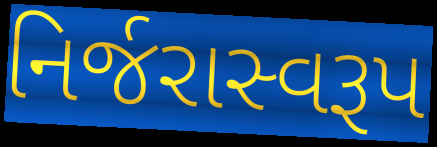
નિર્જરાસ્વરૂપ